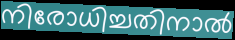
നിരോധിച്ചതിനാൽ